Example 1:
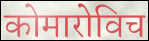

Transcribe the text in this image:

कोमारोविच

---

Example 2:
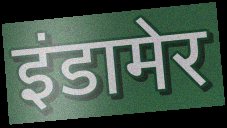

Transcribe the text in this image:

इंडामेर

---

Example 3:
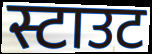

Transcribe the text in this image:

स्टाउट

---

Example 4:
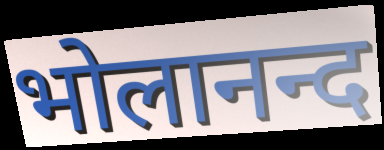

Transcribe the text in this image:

भोलानन्द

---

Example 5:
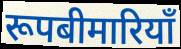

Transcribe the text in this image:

रूपबीमारियाँ